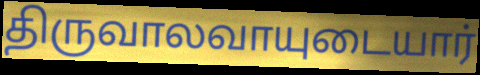
திருவாலவாயுடையார்